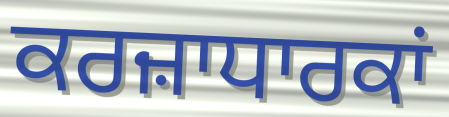
ਕਰਜ਼ਾਧਾਰਕਾਂ